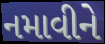
નમાવીને